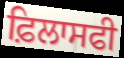
ਫ਼ਿਲਾਸਫੀ